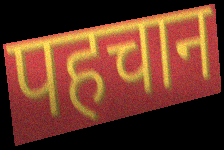
पहचान